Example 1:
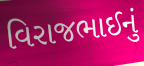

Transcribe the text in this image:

વિરાજભાઈનું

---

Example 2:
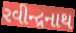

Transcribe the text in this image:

રવીન્દ્રનાથ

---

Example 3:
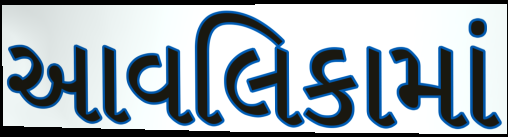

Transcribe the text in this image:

આવલિકામાં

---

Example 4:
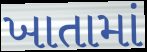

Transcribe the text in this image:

ખાતામાં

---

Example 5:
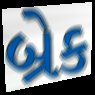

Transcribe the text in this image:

બ્રેક